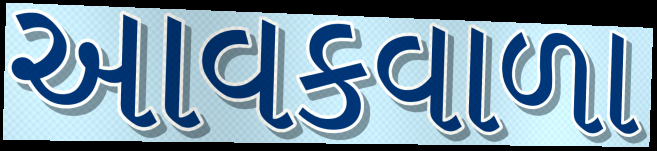
આવકવાળા